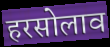
हरसोलाव